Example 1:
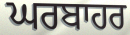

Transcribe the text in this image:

ਘਰਬਾਹਰ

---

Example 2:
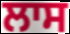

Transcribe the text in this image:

ਲਾਸ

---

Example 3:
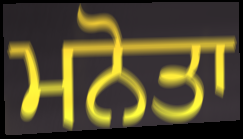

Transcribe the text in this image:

ਮਨੋਤਾ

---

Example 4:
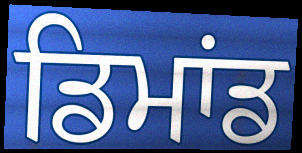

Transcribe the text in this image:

ਡਿਮਾਂਡ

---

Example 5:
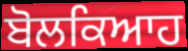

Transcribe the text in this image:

ਬੋਲਕਿਆਹ